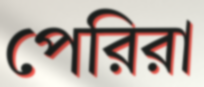
পেরিরা